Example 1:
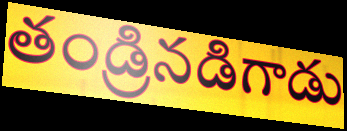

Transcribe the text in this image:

తండ్రినడిగాడు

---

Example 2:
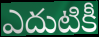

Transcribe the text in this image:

ఎదుటికీ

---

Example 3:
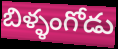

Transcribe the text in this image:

బిళ్ళంగోడు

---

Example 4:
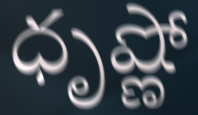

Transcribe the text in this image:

ధృష్ణో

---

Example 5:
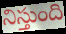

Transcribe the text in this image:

నిస్తుంది